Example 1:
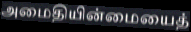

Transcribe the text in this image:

அமைதியின்மையைத்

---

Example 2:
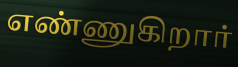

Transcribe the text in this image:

எண்ணுகிறார்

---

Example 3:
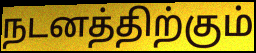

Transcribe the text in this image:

நடனத்திற்கும்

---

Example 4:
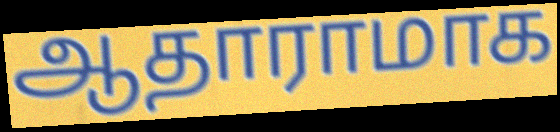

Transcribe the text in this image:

ஆதாராமாக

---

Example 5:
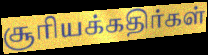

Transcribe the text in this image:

சூரியக்கதிர்கள்